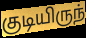
குடியிருந்